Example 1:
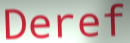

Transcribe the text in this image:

Deref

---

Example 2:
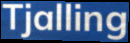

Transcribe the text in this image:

Tjalling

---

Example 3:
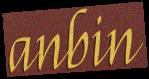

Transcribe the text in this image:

anbin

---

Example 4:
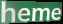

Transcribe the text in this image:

heme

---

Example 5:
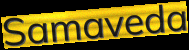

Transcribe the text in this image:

Samaveda